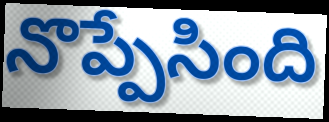
నొప్పేసింది